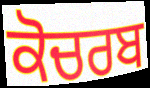
ਕੋਚਰਬ